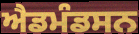
ਐਡਮੰਡਸਨ